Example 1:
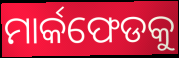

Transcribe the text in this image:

ମାର୍କଫେଡକୁ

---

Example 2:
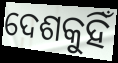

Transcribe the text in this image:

ଦେଶକୁହିଁ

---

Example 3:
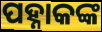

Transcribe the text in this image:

ପହ୍ନାକଙ୍କ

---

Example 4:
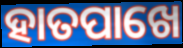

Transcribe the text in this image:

ହାତପାଖେ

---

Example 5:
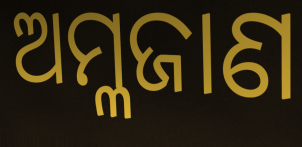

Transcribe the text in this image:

ଅମ୍ଳଜାଣ